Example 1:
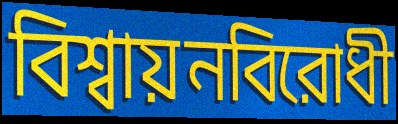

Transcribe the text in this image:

বিশ্বায়নবিরোধী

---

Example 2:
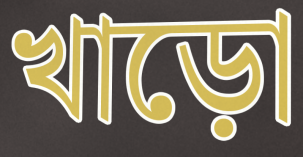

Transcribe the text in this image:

খাড়ো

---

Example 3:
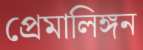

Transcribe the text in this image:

প্রেমালিঙ্গন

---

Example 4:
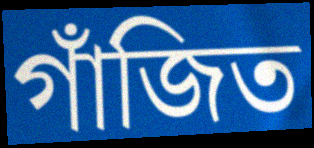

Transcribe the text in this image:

গাঁজিত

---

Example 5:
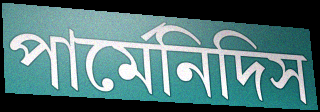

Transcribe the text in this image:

পার্মেনিদিস